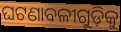
ଘଟଣାବଳୀଗୁଡ଼ିକୁ